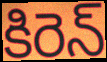
కిరెన్